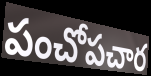
పంచోపచార